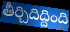
తీర్చిదిద్దింది